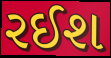
રઈશ